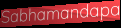
Sabhamandapa